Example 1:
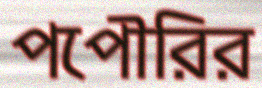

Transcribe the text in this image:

পপৌরির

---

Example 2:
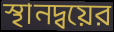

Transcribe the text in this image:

স্থানদ্বয়ের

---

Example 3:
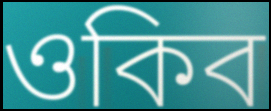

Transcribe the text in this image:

ওকিব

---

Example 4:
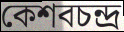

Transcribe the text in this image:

কেশবচন্দ্র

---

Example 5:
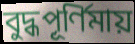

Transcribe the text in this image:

বুদ্ধপূর্ণিমায়